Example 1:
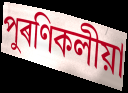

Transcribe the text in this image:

পুৰণিকলীয়া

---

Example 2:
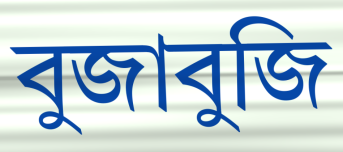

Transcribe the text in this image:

বুজাবুজি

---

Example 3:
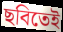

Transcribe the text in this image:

ছবিতেই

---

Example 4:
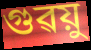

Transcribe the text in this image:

গুৱয়ু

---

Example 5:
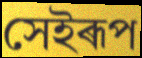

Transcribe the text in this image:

সেইৰূপ